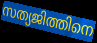
സത്യജിത്തിനെ